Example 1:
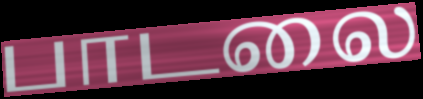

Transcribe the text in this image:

பாடலை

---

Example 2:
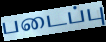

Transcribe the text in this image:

படைப்பு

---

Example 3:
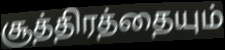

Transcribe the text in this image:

சூத்திரத்தையும்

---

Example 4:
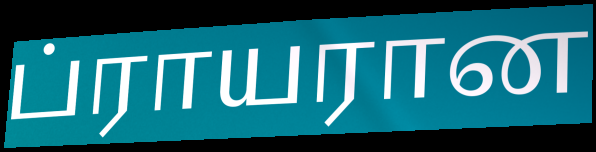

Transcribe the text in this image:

ப்ராயரான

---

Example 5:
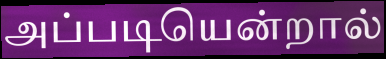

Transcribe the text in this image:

அப்படியென்றால்